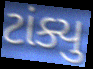
ટાંક્યુ